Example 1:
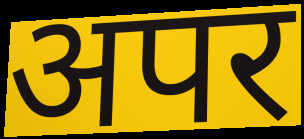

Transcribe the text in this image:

अपर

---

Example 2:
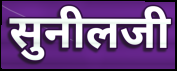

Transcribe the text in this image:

सुनीलजी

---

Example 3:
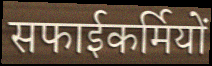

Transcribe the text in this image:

सफाईकर्मियों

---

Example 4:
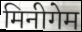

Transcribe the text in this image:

मिनीगेम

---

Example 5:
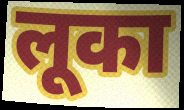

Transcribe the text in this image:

लूका